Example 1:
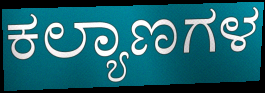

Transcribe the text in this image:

ಕಲ್ಯಾಣಗಳ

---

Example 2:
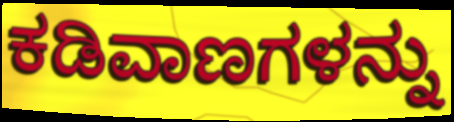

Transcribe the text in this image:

ಕಡಿವಾಣಗಳನ್ನು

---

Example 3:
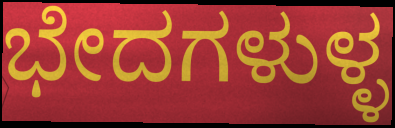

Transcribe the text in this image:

ಭೇದಗಳುಳ್ಳ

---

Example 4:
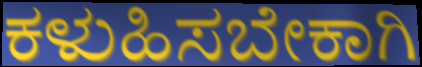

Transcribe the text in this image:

ಕಳುಹಿಸಬೇಕಾಗಿ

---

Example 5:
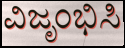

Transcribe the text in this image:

ವಿಜೃಂಭಿಸಿ